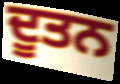
ਦੂਤਨ